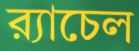
র‍্যাচেল